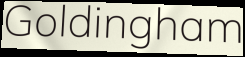
Goldingham